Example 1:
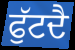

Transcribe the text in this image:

ਫੁੱਟਦੈ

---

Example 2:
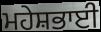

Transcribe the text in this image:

ਮਹੇਸ਼ਭਾਈ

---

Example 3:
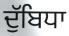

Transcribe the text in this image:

ਦੁੱਬਿਧਾ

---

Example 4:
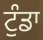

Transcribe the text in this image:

ਟੁੰਡਾ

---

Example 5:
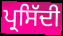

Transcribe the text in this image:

ਪ੍ਰਸਿੱਦੀ